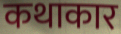
कथाकार